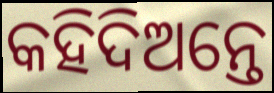
କହିଦିଅନ୍ତେ